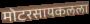
मोटरसायकलला